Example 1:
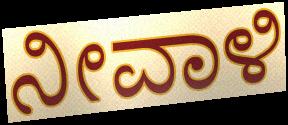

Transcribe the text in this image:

ನೀವಾಳಿ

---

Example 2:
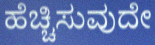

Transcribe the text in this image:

ಹೆಚ್ಚಿಸುವುದೇ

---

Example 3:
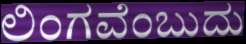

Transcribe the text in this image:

ಲಿಂಗವೆಂಬುದು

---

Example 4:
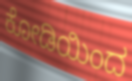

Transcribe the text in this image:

ಕೋಡಿಯಿಂದ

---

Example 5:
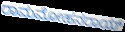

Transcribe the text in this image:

ರಾಮಮೋಹನರಾಯ್